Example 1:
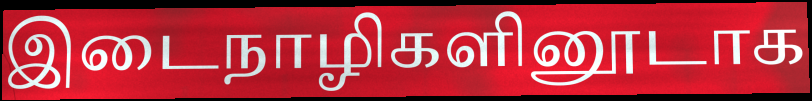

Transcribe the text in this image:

இடைநாழிகளினூடாக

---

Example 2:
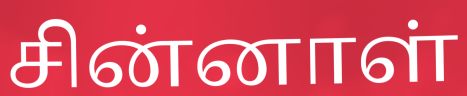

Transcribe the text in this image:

சின்னாள்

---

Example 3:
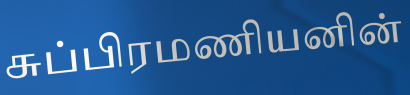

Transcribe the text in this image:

சுப்பிரமணியனின்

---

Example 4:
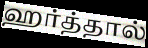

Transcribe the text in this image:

ஹர்த்தால்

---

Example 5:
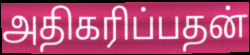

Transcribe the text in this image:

அதிகரிப்பதன்